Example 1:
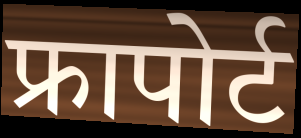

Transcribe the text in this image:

फ्रापोर्ट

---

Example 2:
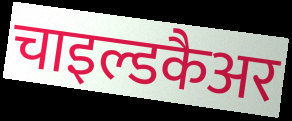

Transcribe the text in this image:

चाइल्डकैअर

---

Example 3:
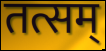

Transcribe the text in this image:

तत्सम्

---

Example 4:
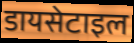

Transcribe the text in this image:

डायसेटाइल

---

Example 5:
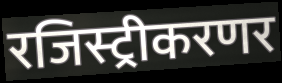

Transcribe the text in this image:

रजिस्ट्रीकरणर